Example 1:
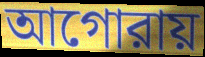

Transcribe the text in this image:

আগোরায়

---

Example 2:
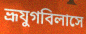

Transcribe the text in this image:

ভ্রূযুগবিলাসে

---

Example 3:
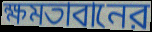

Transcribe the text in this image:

ক্ষমতাবানের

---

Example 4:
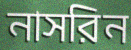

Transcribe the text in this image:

নাসরিন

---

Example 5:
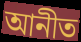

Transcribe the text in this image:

আনীত